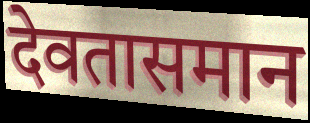
देवतासमान